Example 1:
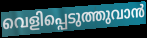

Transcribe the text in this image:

വെളിപ്പെടുത്തുവാൻ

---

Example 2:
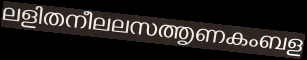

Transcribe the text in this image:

ലളിതനീലലസത്തൃണകംബള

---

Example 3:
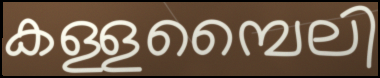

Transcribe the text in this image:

കള്ളമ്പൈലി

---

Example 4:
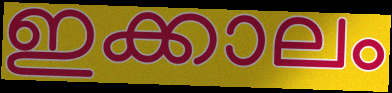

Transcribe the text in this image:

ഇക്കാലം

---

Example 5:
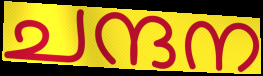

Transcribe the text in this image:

ചന്ദന